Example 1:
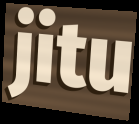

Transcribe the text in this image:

jitu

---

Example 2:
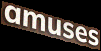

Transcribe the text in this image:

amuses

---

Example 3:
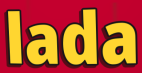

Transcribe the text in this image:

lada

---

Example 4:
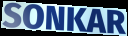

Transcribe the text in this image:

SONKAR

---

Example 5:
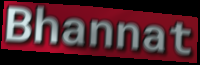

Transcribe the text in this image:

Bhannat